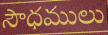
సౌధములు